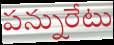
పన్నురేటు